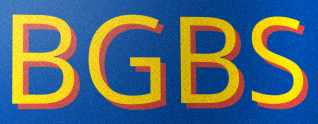
BGBS